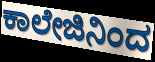
ಕಾಲೇಜಿನಿಂದ